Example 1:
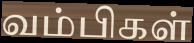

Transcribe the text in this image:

வம்பிகள்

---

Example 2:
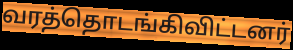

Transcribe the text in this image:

வரத்தொடங்கிவிட்டனர்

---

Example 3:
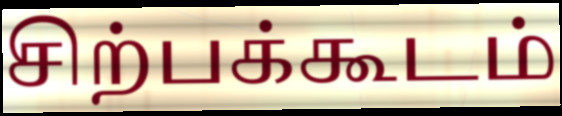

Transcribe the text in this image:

சிற்பக்கூடம்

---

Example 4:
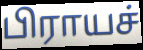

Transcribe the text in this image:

பிராயச்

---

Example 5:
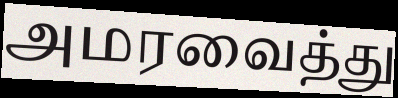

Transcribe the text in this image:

அமரவைத்து